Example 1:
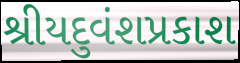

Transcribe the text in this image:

શ્રીયદુવંશપ્રકાશ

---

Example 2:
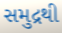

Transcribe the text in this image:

સમુદ્રથી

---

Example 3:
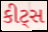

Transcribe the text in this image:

કીટ્સ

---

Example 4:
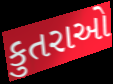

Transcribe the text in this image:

કુતરાઓ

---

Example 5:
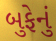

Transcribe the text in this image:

બુફેનું